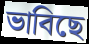
ভাবিছে